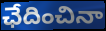
ఛేదించినా